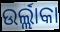
ଉର୍ଲ୍ଲାକା